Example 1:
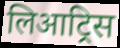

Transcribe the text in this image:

लिआट्रिस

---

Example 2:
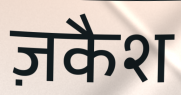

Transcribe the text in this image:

ज़कैश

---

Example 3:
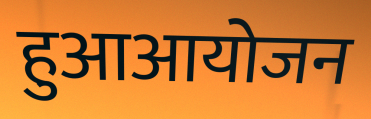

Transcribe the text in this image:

हुआआयोजन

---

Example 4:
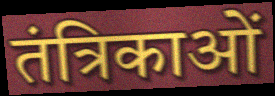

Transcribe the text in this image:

तंत्रिकाओं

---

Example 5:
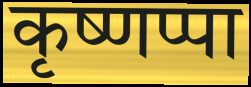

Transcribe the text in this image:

कृष्‍णप्‍पा